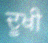
ਦੂਖੀ